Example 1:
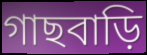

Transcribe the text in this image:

গাছবাড়ি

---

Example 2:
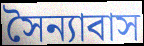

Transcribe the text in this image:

সৈন্যাবাস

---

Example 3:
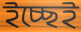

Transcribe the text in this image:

ইচ্ছেই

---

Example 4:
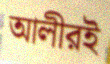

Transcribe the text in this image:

আলীরই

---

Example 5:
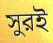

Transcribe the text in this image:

সুরই